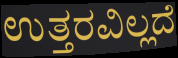
ಉತ್ತರವಿಲ್ಲದೆ